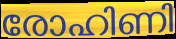
രോഹിണി